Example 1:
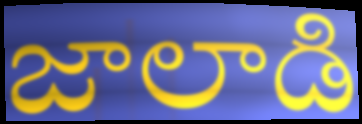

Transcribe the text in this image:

జాలాడి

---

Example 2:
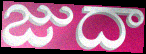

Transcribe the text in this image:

జుదా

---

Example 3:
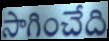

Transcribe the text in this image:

సాగించేది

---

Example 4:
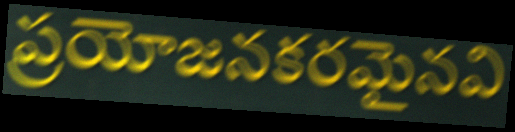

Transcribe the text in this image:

ప్రయోజనకరమైనవి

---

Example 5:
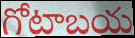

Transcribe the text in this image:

గోటాబయ